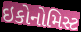
ઇકોનોમિસ્ટ